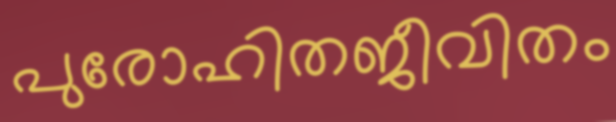
പുരോഹിതജീവിതം